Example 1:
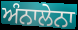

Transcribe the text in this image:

ਅੰਨਾਲੇਨਾ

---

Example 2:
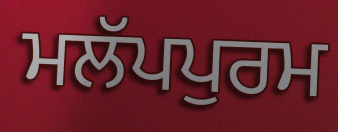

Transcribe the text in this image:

ਮਲੱਪਪੁਰਮ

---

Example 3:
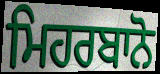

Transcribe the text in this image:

ਮਿਹਰਬਾਨੋ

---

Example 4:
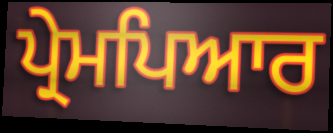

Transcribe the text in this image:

ਪ੍ਰੇਮਪਿਆਰ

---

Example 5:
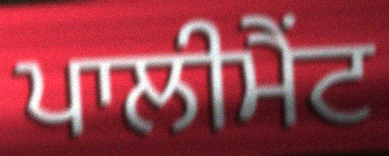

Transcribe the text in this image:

ਪਾਲੀਮੈਂਟ